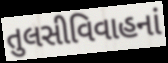
તુલસીવિવાહનાં